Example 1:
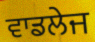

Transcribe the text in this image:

ਵਾਡਲੇਜ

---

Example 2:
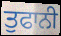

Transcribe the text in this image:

ਤੁਫਾਨੀ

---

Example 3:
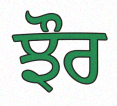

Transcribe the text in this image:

ਝੌਰ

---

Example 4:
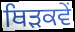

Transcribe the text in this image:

ਥਿੜਕਵੇਂ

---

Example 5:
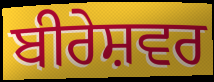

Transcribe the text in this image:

ਬੀਰੇਸ਼ਵਰ